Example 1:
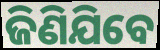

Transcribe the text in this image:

ଜିଣିଯିବେ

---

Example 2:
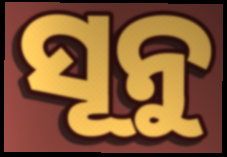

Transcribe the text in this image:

ସୂନୁ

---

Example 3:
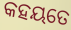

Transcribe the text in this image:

କହୟତେ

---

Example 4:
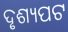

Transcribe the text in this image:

ଦୃଶ୍ୟପଟ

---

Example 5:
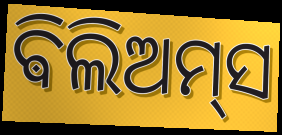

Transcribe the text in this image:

ଵିଲିଅମ୍‌ସ